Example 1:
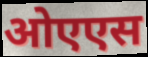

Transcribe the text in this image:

ओएएस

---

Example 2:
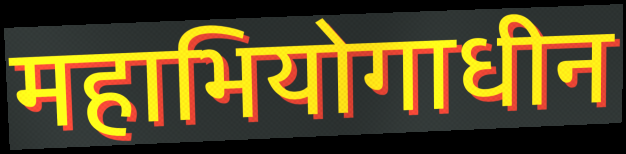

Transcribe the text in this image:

महाभियोगाधीन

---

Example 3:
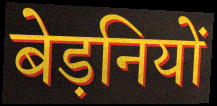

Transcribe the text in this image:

बेड़नियों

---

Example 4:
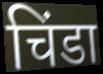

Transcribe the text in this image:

चिंडा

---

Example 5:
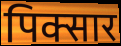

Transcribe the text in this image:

पिक्सार